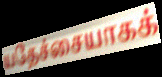
யதேச்சையாகக்